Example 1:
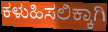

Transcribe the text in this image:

ಕಳುಹಿಸಲಿಕ್ಕಾಗಿ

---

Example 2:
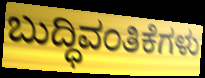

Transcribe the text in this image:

ಬುದ್ಧಿವಂತಿಕೆಗಳು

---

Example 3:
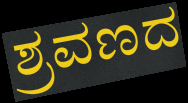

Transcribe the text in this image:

ಶ್ರವಣದ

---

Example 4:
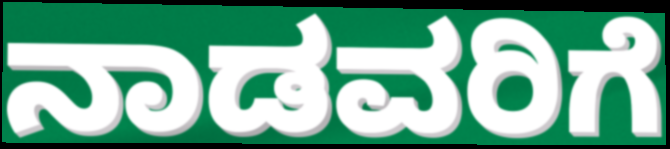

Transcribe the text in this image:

ನಾಡವರಿಗೆ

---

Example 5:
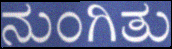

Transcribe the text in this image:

ನುಂಗಿತು